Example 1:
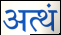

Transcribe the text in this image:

अत्थं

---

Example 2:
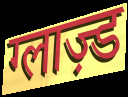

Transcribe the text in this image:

ग्लाज़्ड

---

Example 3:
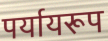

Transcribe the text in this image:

पर्यायरूप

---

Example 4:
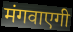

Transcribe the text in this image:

मंगवाएगी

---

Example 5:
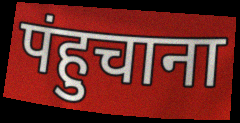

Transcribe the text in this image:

पंहुचाना